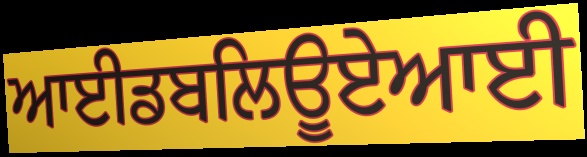
ਆਈਡਬਲਿਊਏਆਈ